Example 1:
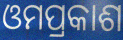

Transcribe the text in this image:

ଓମପ୍ରକାଶ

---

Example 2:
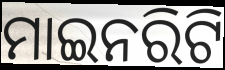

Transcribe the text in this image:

ମାଇନରିଟି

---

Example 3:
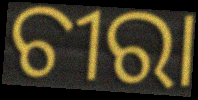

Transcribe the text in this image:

ଚୀରା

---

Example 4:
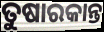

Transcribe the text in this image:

ତୁଷାରକାନ୍ତ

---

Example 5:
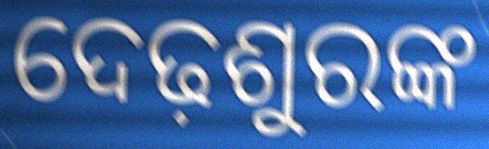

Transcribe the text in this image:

ଦେଢ଼ଶୁରଙ୍କ